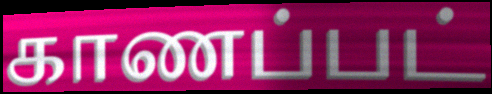
காணப்பட்